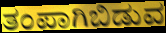
ತಂಪಾಗಿಬಿಡುವ